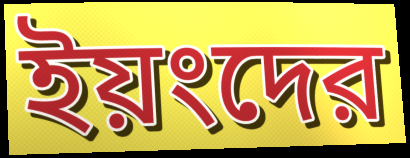
ইয়ংদের